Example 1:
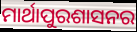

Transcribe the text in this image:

ମାର୍ଥାପୁରଶାସନର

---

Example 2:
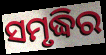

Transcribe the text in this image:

ସମୃଦ୍ଧିର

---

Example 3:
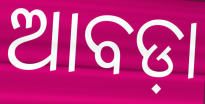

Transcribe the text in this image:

ଆବଡ଼ା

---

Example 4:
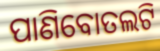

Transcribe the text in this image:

ପାଣିବୋତଲଟି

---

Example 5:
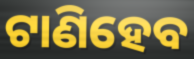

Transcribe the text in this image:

ଟାଣିହେବ